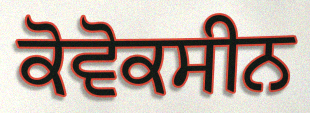
ਕੋਵੋਕਸੀਨ